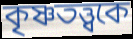
কৃষ্ণতত্ত্বকে